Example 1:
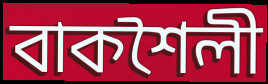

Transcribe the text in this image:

বাকশৈলী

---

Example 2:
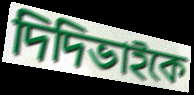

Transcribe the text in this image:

দিদিভাইকে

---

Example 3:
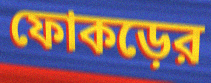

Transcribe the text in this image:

ফোকড়ের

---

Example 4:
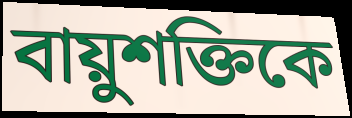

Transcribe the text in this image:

বায়ুশক্তিকে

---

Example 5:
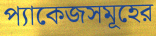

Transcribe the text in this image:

প্যাকেজসমূহের